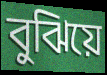
বুঝিয়ে